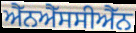
ਐੱਨਐੱਸਸੀਐੱਨ